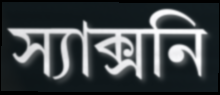
স্যাক্সনি